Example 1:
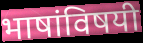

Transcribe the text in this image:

भाषांविषयी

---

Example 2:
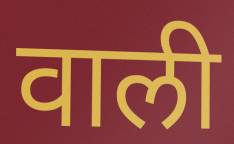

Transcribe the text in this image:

वाली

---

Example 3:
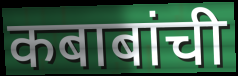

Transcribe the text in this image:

कबाबांची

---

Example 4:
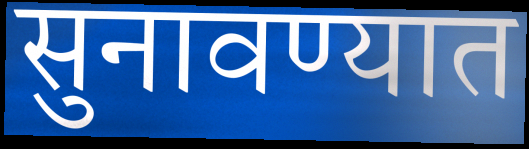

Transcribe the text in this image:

सुनावण्यात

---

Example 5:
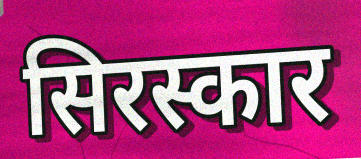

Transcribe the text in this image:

सिरस्कार